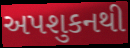
અપશુકનથી